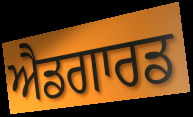
ਐਡਗਾਰਡ